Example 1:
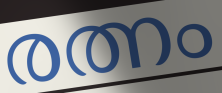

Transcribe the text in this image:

രത്നം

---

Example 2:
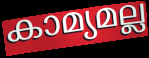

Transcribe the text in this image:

കാമ്യമല്ല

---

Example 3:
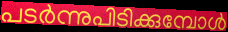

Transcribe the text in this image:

പടർന്നുപിടിക്കുമ്പോൾ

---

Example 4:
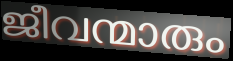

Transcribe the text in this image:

ജീവന്മാരും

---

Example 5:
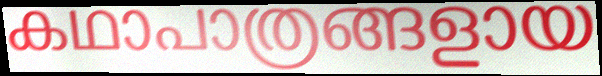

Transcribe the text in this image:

കഥാപാത്രങ്ങളായ